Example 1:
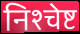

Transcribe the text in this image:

निश्चेष्ट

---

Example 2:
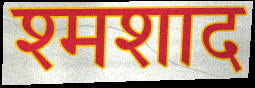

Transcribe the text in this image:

श्मशाद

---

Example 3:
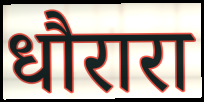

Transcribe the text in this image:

धौरारा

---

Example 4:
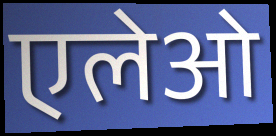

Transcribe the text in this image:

एलेओ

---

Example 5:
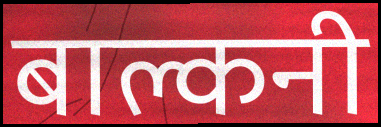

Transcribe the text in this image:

बाल्कनी